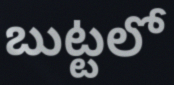
బుట్టలో